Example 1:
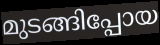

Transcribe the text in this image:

മുടങ്ങിപ്പോയ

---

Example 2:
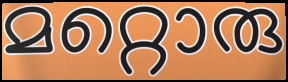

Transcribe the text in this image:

മറ്റൊരു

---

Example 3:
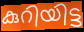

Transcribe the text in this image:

കുറിയിട്ട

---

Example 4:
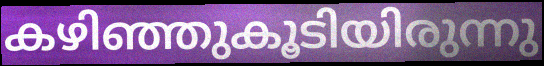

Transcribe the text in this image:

കഴിഞ്ഞുകൂടിയിരുന്നു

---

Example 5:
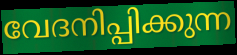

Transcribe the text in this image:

വേദനിപ്പിക്കുന്ന